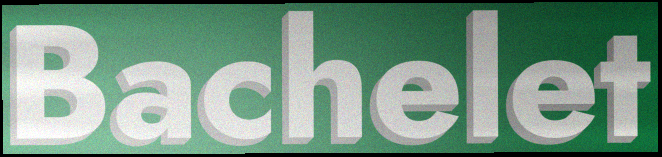
Bachelet